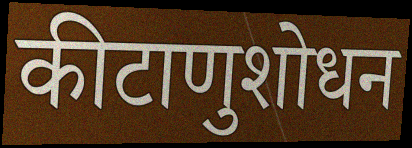
कीटाणुशोधन